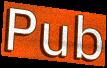
Pub